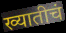
ख्यातीचं